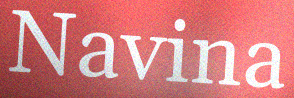
Navina